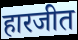
हारजीत